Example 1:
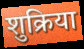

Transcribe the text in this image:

शुक्रिया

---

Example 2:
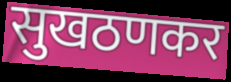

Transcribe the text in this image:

सुखठणकर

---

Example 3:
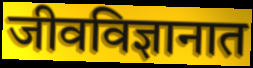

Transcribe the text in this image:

जीवविज्ञानात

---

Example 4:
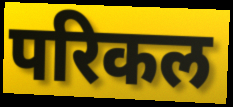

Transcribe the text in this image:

परिकल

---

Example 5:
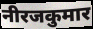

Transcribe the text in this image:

नीरजकुमार